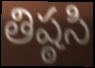
తిష్ఠసి